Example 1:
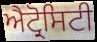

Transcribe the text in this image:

ਐਟ੍ਰੋਸਿਟੀ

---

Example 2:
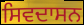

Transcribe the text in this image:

ਸਿਵਦਾਸਨ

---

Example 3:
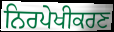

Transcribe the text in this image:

ਨਿਰਪੇਖੀਕਰਣ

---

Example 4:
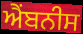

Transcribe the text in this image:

ਐਂਬਨੀਸ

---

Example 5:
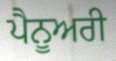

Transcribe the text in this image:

ਪੈਨੂਅਰੀ